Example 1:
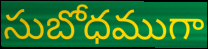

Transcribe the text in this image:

సుబోధముగా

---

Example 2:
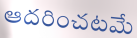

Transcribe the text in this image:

ఆదరించటమే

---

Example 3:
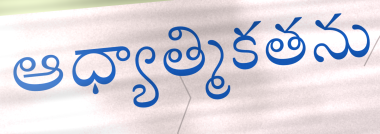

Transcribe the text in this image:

ఆధ్యాత్మికతను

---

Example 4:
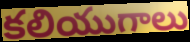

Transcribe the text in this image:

కలియుగాలు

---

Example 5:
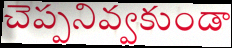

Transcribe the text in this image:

చెప్పనివ్వకుండా